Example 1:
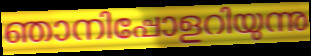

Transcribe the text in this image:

ഞാനിപ്പോളറിയുന്നു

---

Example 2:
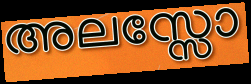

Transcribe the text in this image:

അലസ്സോ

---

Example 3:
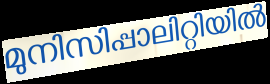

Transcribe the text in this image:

മുനിസിപ്പാലിറ്റിയിൽ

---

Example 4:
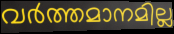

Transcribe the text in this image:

വർത്തമാനമില്ല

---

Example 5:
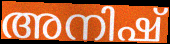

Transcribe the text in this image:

അനിഷ്